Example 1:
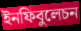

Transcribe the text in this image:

ইনফিবুলেচন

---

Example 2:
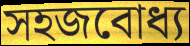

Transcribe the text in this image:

সহজবোধ্য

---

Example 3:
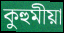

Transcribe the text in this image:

কুহুমীয়া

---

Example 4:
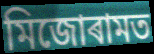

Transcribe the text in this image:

মিজোৰামত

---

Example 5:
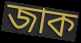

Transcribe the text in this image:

জাক